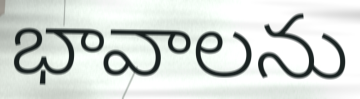
భావాలను